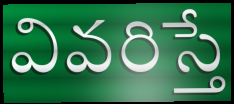
వివరిస్తే